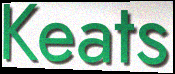
Keats